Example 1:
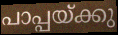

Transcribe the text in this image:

പാപ്പയ്ക്കു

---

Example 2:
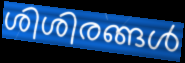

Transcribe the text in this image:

ശിശിരങ്ങൾ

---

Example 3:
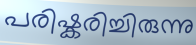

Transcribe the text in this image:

പരിഷ്കരിച്ചിരുന്നു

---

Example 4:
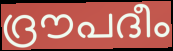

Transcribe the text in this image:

ദ്രൗപദീം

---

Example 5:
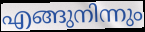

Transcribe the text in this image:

എങ്ങുനിന്നും